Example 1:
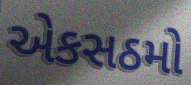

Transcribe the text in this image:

એકસઠમો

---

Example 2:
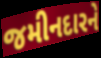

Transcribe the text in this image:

જમીનદારને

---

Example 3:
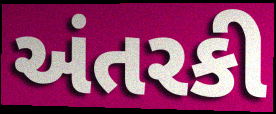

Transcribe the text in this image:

અંતરકી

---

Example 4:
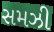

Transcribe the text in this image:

સમઝી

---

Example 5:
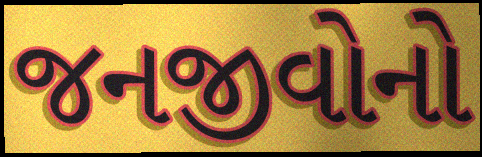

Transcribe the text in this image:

જનજીવોનો